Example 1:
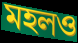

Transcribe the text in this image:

মহলও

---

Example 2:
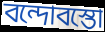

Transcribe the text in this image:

বন্দোবস্তো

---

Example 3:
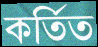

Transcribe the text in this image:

কর্তিত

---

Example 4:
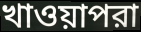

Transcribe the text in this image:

খাওয়াপরা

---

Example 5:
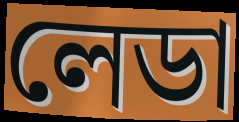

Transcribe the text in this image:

লেডা